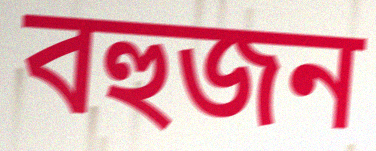
বহুজন